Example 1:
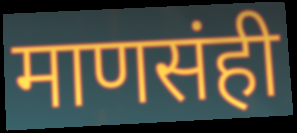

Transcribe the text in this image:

माणसंही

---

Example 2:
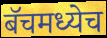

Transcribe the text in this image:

बॅचमध्येच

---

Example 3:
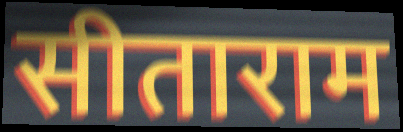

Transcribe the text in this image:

सीताराम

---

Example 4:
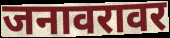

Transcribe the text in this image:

जनावरावर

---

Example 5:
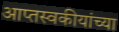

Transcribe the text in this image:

आप्तस्वकीयांच्या